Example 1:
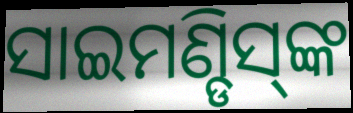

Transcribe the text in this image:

ସାଇମଣ୍ଡିସ୍‍ଙ୍କ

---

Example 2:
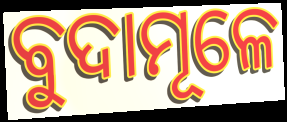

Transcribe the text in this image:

ବୁଦାମୂଳେ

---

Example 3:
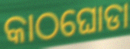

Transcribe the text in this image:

କାଠଘୋଡା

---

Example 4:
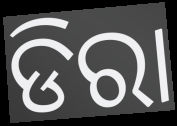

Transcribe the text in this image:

ଡିରା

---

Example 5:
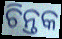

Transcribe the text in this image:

ଚିନ୍ତକ